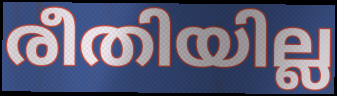
രീതിയില്ല